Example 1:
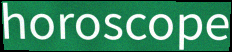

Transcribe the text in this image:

horoscope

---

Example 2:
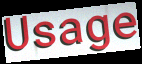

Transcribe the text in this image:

Usage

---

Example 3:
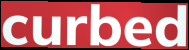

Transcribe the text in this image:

curbed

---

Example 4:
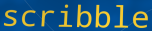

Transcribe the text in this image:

scribble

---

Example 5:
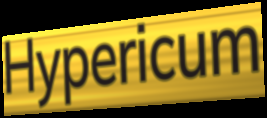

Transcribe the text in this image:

Hypericum